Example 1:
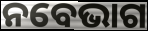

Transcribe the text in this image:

ନବେଭାଗ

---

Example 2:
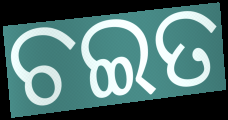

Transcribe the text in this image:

ଚଇତ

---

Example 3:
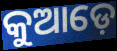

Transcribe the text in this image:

କୁଆଡ଼େ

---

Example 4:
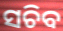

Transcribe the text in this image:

ସଚିବ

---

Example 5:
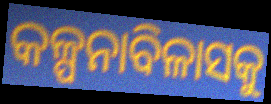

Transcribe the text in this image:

କଳ୍ପନାବିଳାସକୁ